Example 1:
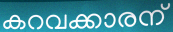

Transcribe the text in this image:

കറവക്കാരന്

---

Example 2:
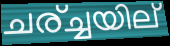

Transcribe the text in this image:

ചര്ച്ചയില്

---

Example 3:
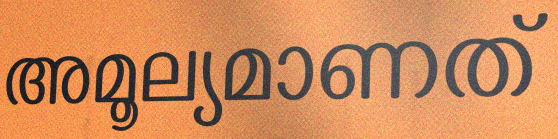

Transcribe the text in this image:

അമൂല്യമാണത്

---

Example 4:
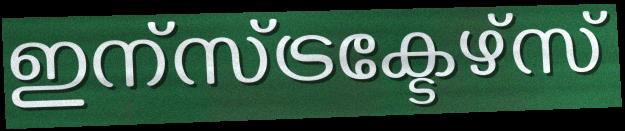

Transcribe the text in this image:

ഇന്സ്ട്രക്ടേഴ്സ്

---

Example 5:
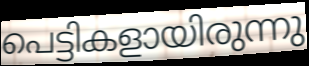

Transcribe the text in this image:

പെട്ടികളായിരുന്നു